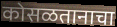
कोसळतानाचा